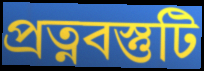
প্রত্নবস্তুটি